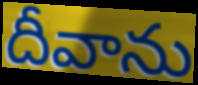
దీవాను